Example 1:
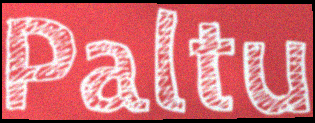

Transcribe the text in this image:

Paltu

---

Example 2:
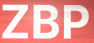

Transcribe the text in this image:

ZBP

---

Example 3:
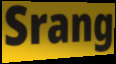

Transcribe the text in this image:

Srang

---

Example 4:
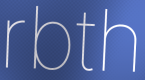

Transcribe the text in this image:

rbth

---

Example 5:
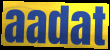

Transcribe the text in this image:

aadat